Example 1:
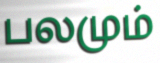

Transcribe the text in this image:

பலமும்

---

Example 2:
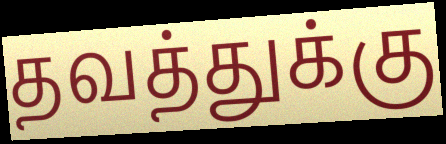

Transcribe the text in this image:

தவத்துக்கு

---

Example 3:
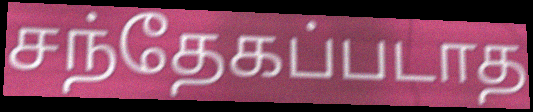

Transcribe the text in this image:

சந்தேகப்படாத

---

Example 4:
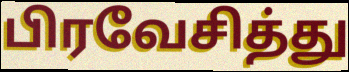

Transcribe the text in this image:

பிரவேசித்து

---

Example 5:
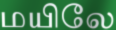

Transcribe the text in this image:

மயிலே